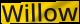
Willow